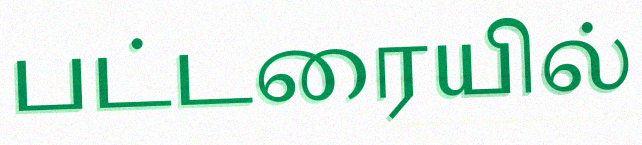
பட்டரையில்